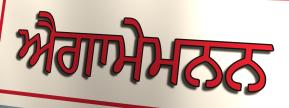
ਐਗਾਮੇਮਨਨ